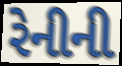
રેનીની